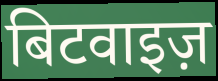
बिटवाइज़